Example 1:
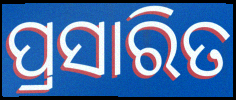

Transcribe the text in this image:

ପ୍ରସାରିତ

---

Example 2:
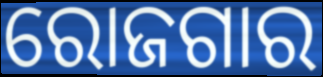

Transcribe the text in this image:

ରୋଜଗାର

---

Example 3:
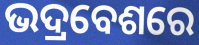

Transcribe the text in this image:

ଭଦ୍ରବେଶରେ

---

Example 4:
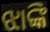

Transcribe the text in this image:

ଝାଙ୍କି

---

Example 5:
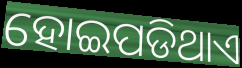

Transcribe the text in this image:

ହୋଇପଡିଥାଏ